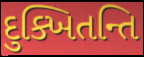
દુક્ખિતન્તિ